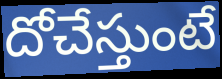
దోచేస్తుంటే